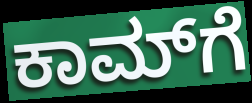
ಕಾಮ್‌ಗೆ